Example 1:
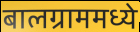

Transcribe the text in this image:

बालग्राममध्ये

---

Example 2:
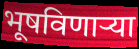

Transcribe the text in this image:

भूषविणार्‍या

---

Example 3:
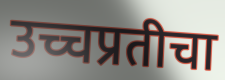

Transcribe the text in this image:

उच्चप्रतीचा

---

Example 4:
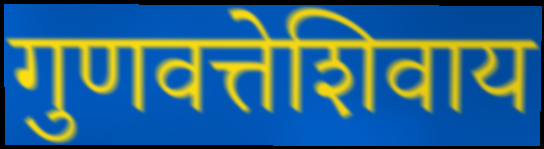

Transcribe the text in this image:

गुणवत्तेशिवाय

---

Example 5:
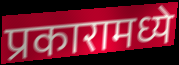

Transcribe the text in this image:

प्रकारामध्ये